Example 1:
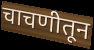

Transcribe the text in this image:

चाचणीतून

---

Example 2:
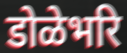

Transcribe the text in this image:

डोळेभरि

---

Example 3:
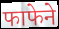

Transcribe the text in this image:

फाफेने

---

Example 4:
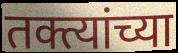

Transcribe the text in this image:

तक्त्यांच्या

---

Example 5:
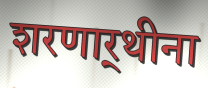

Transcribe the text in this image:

शरणार्थीना